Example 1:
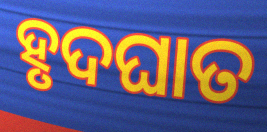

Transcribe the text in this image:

ହୃଦଘାତ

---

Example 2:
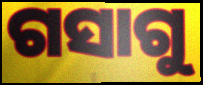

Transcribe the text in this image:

ଗସାଗୁ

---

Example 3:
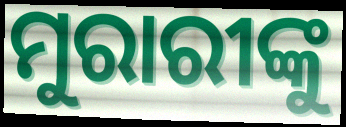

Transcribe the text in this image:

ମୁରାରୀଙ୍କୁ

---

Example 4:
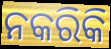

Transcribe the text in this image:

ନକରିକି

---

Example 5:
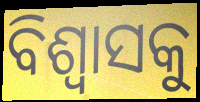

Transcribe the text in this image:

ବିଶ୍ୱାସକୁ